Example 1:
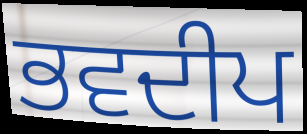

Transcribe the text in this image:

ਭਵਦੀਪ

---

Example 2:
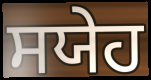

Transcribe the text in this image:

ਸਯੇਹ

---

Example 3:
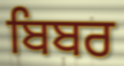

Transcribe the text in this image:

ਬਿਬਰ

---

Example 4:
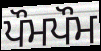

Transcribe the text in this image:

ਪੌਮਪੌਮ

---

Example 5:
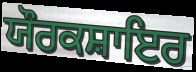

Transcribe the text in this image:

ਯੌਰਕਸ਼ਾਇਰ